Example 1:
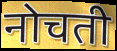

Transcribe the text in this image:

नोचती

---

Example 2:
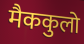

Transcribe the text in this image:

मैककुलो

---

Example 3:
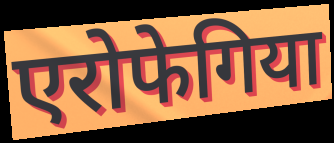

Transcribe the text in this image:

एरोफेगिया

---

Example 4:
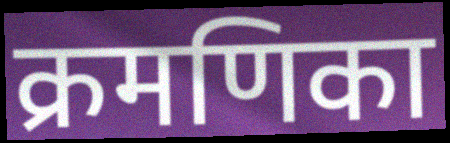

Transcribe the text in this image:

क्रमणिका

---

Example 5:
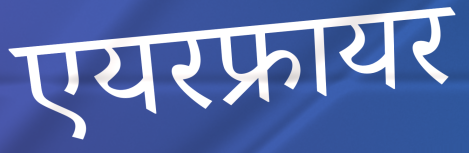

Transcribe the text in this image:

एयरफ्रायर